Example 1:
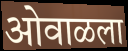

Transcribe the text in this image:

ओवाळला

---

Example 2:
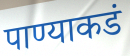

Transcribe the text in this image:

पाण्याकडं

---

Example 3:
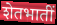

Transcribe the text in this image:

शेतभातीं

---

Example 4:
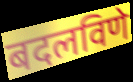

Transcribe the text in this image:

बदलविणे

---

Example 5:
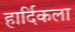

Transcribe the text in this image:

हार्दिकला